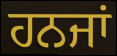
ਹਨਜਾਂ